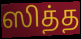
ஸித்த